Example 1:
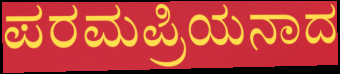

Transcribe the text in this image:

ಪರಮಪ್ರಿಯನಾದ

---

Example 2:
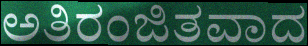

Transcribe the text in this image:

ಅತಿರಂಜಿತವಾದ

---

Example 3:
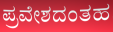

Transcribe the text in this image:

ಪ್ರವೇಶದಂತಹ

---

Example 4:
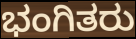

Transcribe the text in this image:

ಭಂಗಿತರು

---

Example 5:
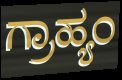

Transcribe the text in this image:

ಗ್ರಾಹ್ಯಂ